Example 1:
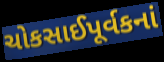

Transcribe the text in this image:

ચોકસાઈપૂર્વકનાં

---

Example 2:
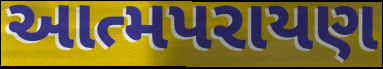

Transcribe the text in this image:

આત્મપરાયણ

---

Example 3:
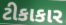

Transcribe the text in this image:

ટીકાકાર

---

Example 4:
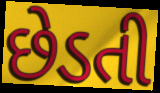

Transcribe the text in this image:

છેડતી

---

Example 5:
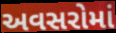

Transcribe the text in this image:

અવસરોમાં